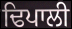
ਢਿਪਾਲੀ